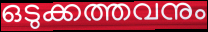
ഒടുക്കത്തവനും